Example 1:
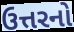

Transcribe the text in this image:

ઉત્તરનો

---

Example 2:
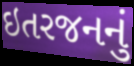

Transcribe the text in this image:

ઇતરજનનું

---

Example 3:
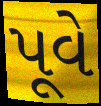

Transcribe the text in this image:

પૂવે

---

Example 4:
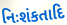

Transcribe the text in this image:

નિઃશંકતાદિ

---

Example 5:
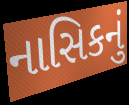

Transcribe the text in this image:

નાસિકનું